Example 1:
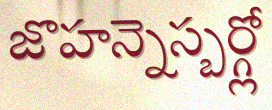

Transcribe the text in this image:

జొహన్నెస్బర్గ్లో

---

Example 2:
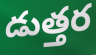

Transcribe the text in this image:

డుత్తర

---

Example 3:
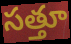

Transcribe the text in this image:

సత్తూ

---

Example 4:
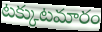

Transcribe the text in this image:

టక్కుటమారం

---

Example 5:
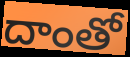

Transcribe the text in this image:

దాంతో